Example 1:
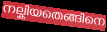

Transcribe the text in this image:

നല്കിയതെങ്ങിനെ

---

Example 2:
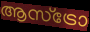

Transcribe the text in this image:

ആസ്ട്രോ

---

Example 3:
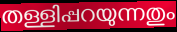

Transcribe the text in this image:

തള്ളിപ്പറയുന്നതും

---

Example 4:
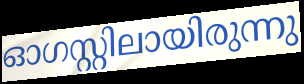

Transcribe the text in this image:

ഓഗസ്റ്റിലായിരുന്നു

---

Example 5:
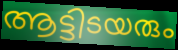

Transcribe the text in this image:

ആട്ടിടയരും